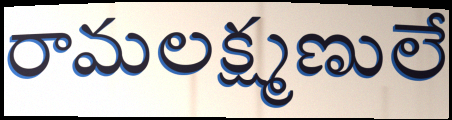
రామలక్ష్మణులే